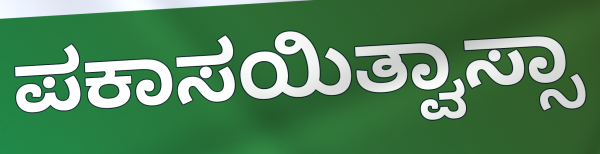
ಪಕಾಸಯಿತ್ವಾಸ್ಸಾ